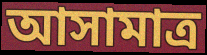
আসামাত্র